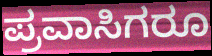
ಪ್ರವಾಸಿಗರೂ